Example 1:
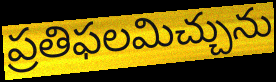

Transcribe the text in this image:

ప్రతిఫలమిచ్చును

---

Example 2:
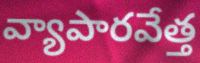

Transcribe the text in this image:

వ్యాపారవేత్త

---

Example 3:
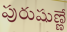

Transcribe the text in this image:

పురుషుణ్ణే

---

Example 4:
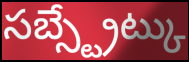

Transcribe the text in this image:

సబ్స్ట్రేట్కు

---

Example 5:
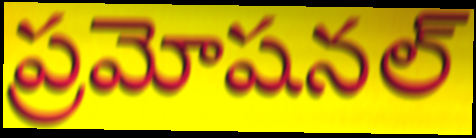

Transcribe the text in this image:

ప్రమోషనల్